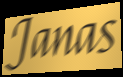
Janas